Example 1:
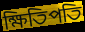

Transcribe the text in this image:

ক্ষিতিপতি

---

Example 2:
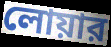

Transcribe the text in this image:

লোয়ার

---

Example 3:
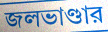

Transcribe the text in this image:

জলভাণ্ডার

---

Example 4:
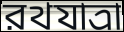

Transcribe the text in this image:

রথযাত্রা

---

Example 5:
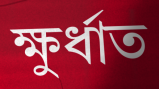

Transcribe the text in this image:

ক্ষুর্ধাত